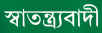
স্বাতন্ত্র্যবাদী